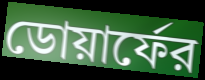
ডোয়ার্ফের